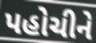
પહોચીને